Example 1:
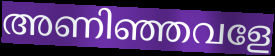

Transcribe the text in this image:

അണിഞ്ഞവളേ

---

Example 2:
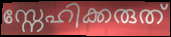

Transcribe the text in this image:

സ്നേഹിക്കരുത്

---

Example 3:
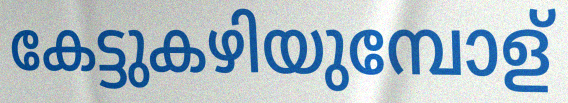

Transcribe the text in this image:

കേട്ടുകഴിയുമ്പോള്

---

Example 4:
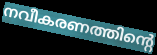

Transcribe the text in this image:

നവീകരണത്തിന്റെ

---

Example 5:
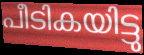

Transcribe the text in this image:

പീടികയിട്ടു